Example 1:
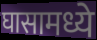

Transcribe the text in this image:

घासामध्ये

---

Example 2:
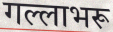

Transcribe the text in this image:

गल्लाभरू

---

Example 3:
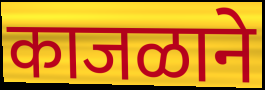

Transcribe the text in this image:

काजळाने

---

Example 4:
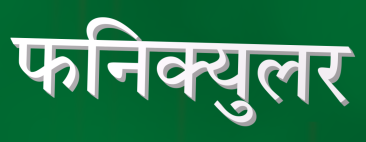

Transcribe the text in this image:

फनिक्युलर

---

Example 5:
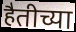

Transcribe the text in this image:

हैतीच्या